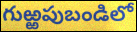
గుఱ్ఱపుబండిలో